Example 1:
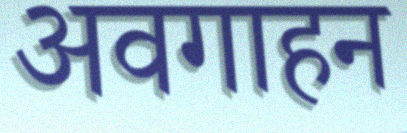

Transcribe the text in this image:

अवगाहन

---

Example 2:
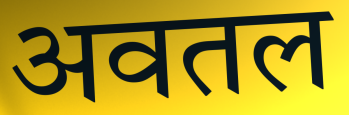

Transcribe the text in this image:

अवतल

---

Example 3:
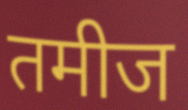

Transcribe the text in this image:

तमीज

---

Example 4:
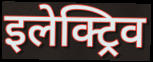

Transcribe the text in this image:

इलेक्ट्रिव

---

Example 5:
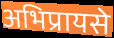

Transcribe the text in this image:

अभिप्रायसे